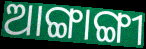
ଆଙ୍ଗାଙ୍ଗୀ